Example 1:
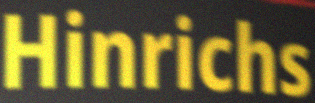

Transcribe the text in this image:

Hinrichs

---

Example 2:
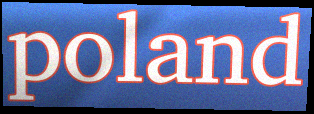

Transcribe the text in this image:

poland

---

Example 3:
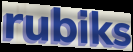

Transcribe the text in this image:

rubiks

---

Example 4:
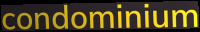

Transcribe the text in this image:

condominium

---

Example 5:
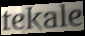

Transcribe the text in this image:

tekale